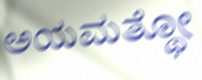
ಅಯಮತ್ಥೋ